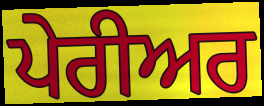
ਪੇਰੀਅਰ